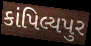
કાંપિલ્યપુર